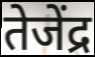
तेजेंद्र